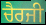
ਚੈਰਜੀ